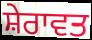
ਸ਼ੇਰਾਵਤ